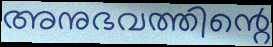
അനുഭവത്തിന്റെ